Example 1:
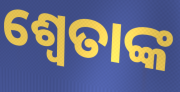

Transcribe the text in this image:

ଶ୍ଵେତାଙ୍କ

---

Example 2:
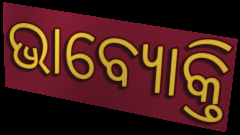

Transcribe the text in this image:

ଭାବ୍ୟୋକ୍ତି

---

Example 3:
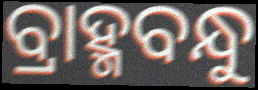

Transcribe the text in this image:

ବ୍ରାହ୍ମବନ୍ଧୁ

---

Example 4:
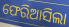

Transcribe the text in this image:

ଫେରିଆସିଲା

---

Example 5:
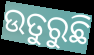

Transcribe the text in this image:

ଉତୁରୁଛି